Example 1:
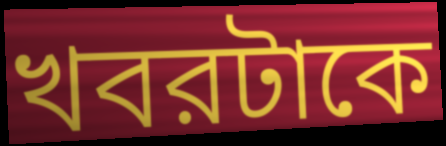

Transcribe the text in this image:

খবরটাকে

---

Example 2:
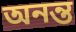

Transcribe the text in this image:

অনন্ত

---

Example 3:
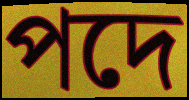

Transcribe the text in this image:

পদে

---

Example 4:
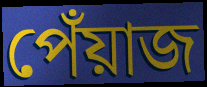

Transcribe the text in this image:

পেঁয়াজ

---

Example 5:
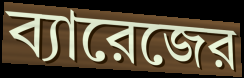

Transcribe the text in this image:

ব্যারেজের